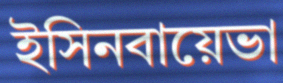
ইসিনবায়েভা